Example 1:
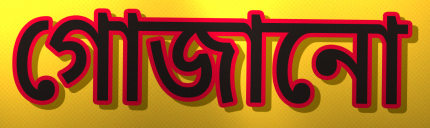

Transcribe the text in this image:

গোজানো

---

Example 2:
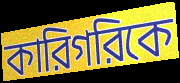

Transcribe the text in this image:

কারিগরিকে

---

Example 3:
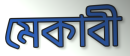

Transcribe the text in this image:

মেকাবী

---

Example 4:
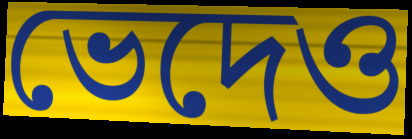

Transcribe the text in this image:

ভেদেও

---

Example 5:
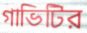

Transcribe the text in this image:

গাভিটির